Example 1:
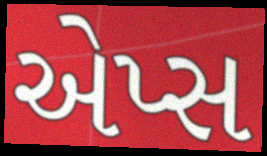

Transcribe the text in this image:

એપ્સ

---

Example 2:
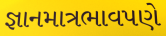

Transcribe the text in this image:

જ્ઞાનમાત્રભાવપણે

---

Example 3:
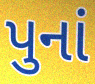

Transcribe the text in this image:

પુનાં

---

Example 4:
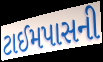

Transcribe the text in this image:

ટાઈમપાસની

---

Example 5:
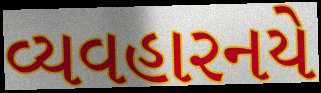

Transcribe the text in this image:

વ્યવહારનયે